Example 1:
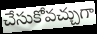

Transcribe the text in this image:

చేసుకోవచ్చుగా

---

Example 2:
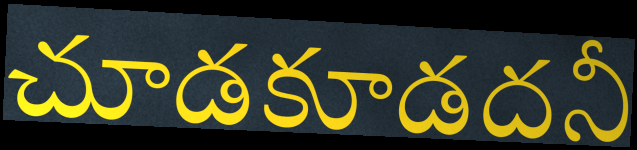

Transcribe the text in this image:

చూడకూడదనీ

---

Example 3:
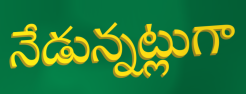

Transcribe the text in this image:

నేడున్నట్లుగా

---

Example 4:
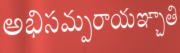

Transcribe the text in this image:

అభిసమ్పరాయఞ్చాతి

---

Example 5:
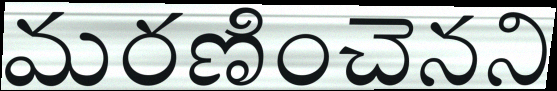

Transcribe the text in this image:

మరణించెనని